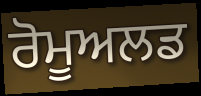
ਰੋਮੂਅਲਡ